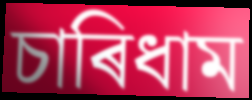
চাৰিধাম